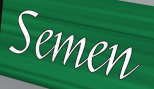
Semen